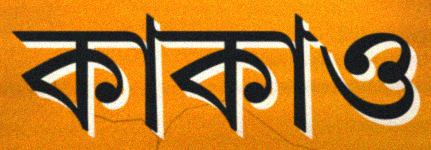
কাকাও